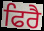
ਫਿਰੈ